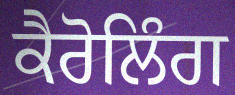
ਕੈਰੋਲਿੰਗ